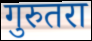
गुरुतरा